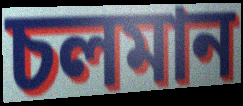
চলমান